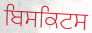
ਬਿਸਕਿਟਸ